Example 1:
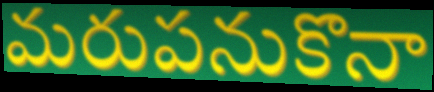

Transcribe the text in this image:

మరుపనుకొనా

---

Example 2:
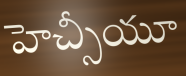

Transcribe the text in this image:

హెచ్సీయూ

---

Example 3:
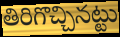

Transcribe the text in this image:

తిరిగొచ్చినట్టు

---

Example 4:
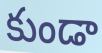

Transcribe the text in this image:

కుండా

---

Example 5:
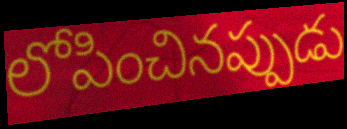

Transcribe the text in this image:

లోపించినప్పుడు